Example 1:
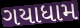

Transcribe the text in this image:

ગયાધામ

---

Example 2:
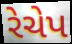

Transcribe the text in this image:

રેચેપ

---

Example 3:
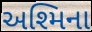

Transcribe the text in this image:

અશ્મિના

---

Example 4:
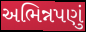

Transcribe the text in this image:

અભિન્નપણું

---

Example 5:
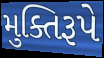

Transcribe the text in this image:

મુક્તિરૂપે